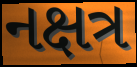
નક્ષત્ર